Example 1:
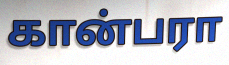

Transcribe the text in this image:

கான்பரா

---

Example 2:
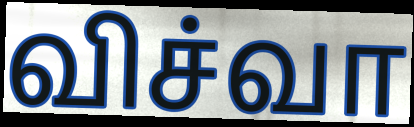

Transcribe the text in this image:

விச்வா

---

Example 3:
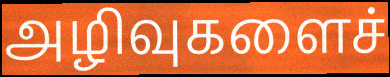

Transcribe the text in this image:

அழிவுகளைச்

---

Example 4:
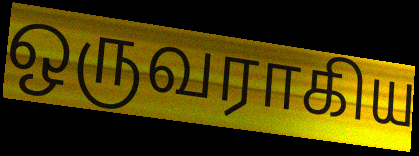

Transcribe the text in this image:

ஒருவராகிய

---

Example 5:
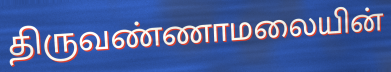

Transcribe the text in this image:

திருவண்ணாமலையின்